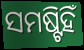
ସମଷ୍ଟିହିଁ